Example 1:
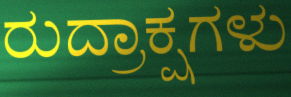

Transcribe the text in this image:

ರುದ್ರಾಕ್ಷಗಳು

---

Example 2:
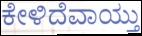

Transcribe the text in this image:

ಕೇಳಿದೆವಾಯ್ತು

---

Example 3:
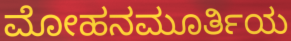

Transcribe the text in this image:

ಮೋಹನಮೂರ್ತಿಯ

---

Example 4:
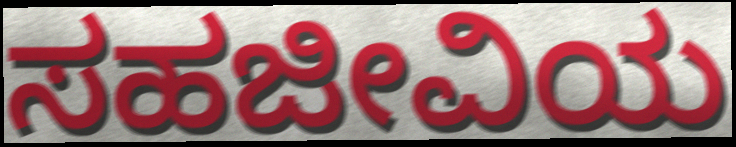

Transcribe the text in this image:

ಸಹಜೀವಿಯ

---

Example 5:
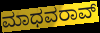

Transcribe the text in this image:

ಮಾಧವರಾವ್